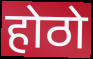
होठो